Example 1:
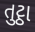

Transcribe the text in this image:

તુટ્ઠા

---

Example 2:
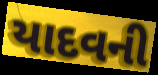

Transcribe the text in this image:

યાદવની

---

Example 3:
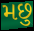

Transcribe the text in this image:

મછુ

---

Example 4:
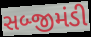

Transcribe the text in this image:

સબ્જીમંડી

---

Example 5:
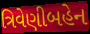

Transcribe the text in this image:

ત્રિવેણીબહેન